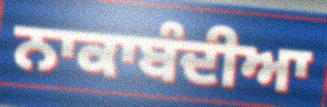
ਨਾਕਾਬੰਦੀਆ